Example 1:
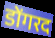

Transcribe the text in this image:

डोंगरद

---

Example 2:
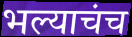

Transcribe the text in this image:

भल्याचंच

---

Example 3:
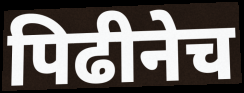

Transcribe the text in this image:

पिढीनेच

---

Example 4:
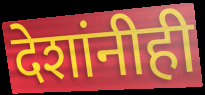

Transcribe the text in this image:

देशांनीही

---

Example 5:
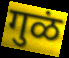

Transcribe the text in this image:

गुळं